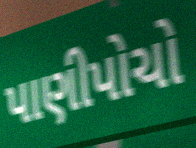
પાણીપોચો